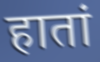
हातां